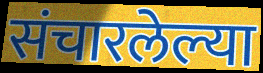
संचारलेल्या